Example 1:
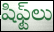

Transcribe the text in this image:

షిఫ్ట్‌లు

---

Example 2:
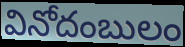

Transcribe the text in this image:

వినోదంబులం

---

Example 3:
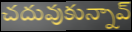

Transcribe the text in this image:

చదువుకున్నావ్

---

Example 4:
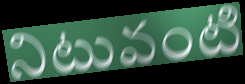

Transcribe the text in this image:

నిటువంటి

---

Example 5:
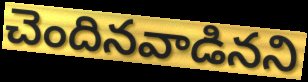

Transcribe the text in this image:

చెందినవాడినని